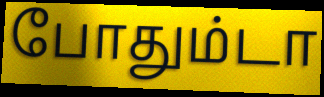
போதும்டா